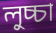
লুচ্চা